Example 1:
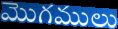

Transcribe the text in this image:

మొగములు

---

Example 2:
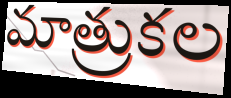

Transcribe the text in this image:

మాత్రుకల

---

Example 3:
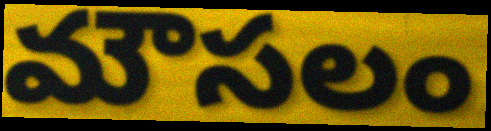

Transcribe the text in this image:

మౌసలం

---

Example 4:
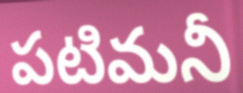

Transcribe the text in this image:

పటిమనీ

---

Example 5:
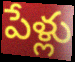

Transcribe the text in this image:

పేళ్లు